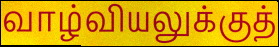
வாழ்வியலுக்குத்